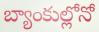
బ్యాంకుల్లోనో